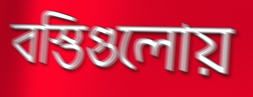
বস্তিগুলোয়